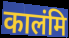
कालंमि